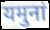
यमुनां